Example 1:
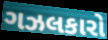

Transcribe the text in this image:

ગઝલકારો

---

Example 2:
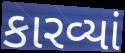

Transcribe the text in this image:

કારવ્યાં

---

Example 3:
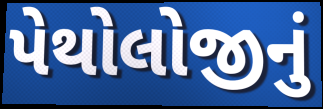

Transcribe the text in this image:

પેથોલોજીનું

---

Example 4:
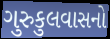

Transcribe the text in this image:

ગુરુકુલવાસનો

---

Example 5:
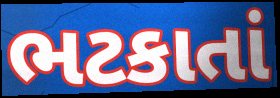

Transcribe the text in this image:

ભટકાતાં